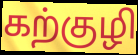
கற்குழி